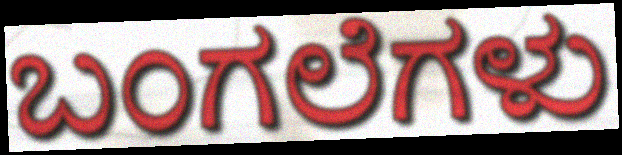
ಬಂಗಲೆಗಳು